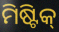
ମିଷ୍ଟିକ୍